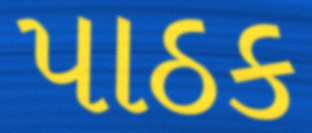
પાઠક